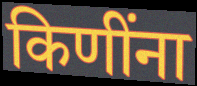
किणींना